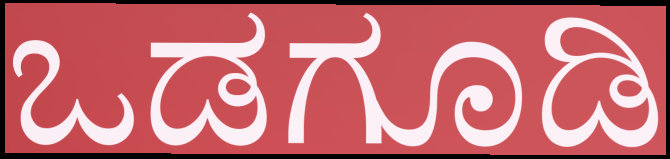
ಒಡಗೂಡಿ